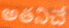
అతనిచే